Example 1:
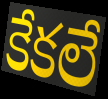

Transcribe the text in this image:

కేకలే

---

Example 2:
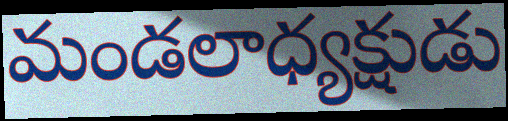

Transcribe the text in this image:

మండలాధ్యక్షుడు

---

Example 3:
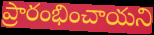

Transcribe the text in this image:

ప్రారంభించాయని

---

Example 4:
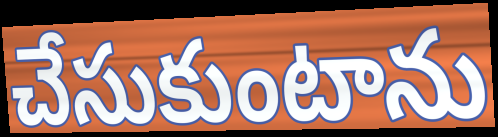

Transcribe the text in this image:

చేసుకుంటాను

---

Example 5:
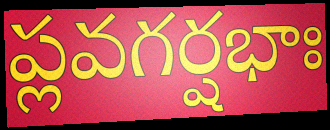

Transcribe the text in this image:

ప్లవగర్షభాః